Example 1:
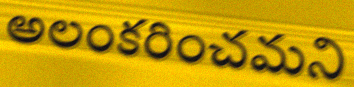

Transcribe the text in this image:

అలంకరించమని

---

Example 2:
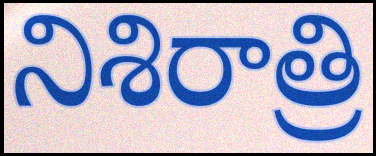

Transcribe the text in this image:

నిశిరాత్రి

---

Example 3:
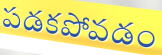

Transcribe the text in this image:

పడకపోవడం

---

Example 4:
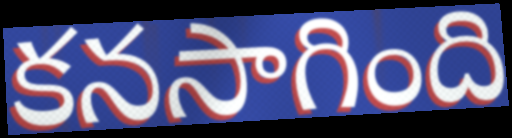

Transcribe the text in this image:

కనసాగింది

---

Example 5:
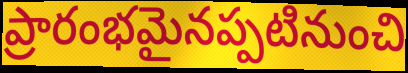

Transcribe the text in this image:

ప్రారంభమైనప్పటినుంచి